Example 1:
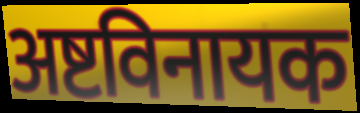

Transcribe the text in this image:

अष्टविनायक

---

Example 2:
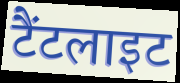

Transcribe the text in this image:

टैंटलाइट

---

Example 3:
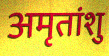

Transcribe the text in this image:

अमृतांशु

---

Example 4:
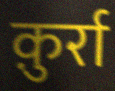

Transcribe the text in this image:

क़ुर्रा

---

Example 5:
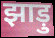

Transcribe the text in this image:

झाड़ु